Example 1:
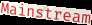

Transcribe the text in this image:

Mainstream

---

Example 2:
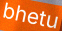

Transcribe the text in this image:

bhetu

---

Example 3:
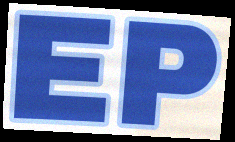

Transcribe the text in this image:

EP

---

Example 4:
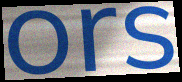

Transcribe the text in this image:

ors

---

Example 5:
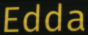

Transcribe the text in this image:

Edda